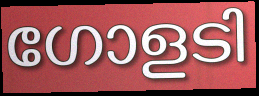
ഗോളടി